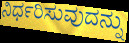
ನಿರ್ಧರಿಸುವುದನ್ನು